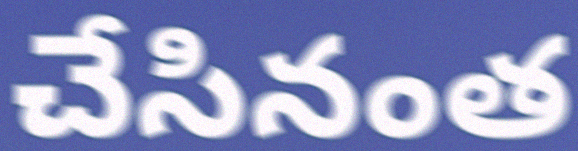
చేసినంత